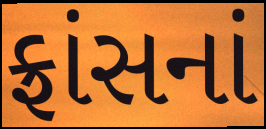
ફ્રાંસનાં